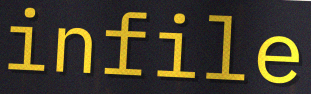
infile